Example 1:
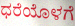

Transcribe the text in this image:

ಧರೆಯೊಳಗೆ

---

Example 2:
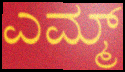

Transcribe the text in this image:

ಎಮ್ಮ್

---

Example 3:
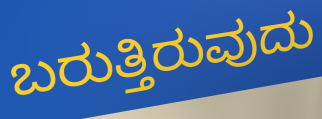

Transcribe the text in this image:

ಬರುತ್ತಿರುವುದು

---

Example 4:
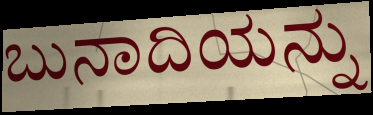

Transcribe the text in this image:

ಬುನಾದಿಯನ್ನು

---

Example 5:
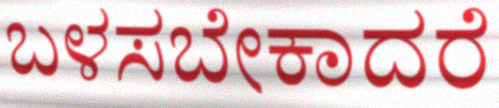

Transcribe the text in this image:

ಬಳಸಬೇಕಾದರೆ